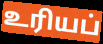
உரியப்